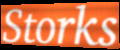
Storks